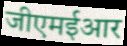
जीएमईआर